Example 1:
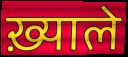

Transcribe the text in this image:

ख़्याले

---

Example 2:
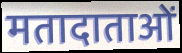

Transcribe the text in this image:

मतादाताओं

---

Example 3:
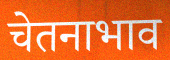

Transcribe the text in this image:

चेतनाभाव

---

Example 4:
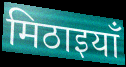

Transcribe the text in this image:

मिठाइयाँ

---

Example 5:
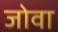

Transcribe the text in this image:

जोवा